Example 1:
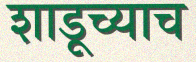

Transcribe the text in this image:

शाडूच्याच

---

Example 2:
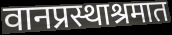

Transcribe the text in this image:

वानप्रस्थाश्रमात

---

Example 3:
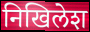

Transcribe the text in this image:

निखिलेश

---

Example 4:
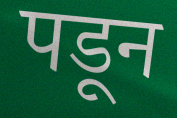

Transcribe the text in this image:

पडून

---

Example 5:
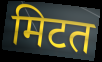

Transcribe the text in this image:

मिटत